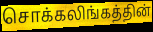
சொக்கலிங்கத்தின்